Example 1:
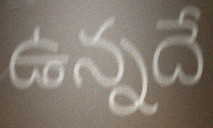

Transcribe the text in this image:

ఉన్నదే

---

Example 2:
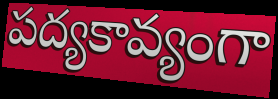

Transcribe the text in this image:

పద్యకావ్యంగా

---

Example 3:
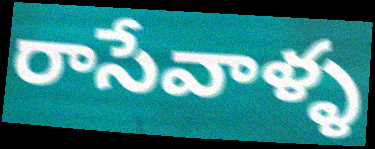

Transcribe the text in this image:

రాసేవాళ్ళ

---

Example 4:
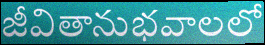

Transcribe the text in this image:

జీవితానుభవాలలో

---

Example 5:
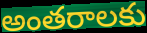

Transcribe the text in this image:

అంతరాలకు